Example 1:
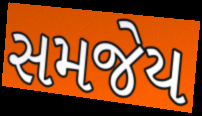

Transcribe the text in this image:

સમજેય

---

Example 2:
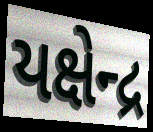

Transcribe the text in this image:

યક્ષેન્દ્ર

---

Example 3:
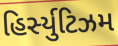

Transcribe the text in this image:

હિર્સ્યુટિઝમ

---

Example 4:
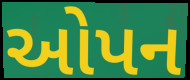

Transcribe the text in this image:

ઓપન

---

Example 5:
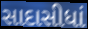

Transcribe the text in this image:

સાદાસીધાં